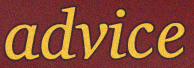
advice